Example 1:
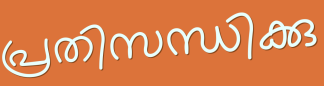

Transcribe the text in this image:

പ്രതിസന്ധിക്കു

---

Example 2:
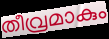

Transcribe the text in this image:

തീവ്രമാകും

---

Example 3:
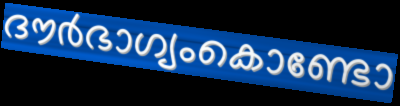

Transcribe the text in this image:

ദൗർഭാഗ്യംകൊണ്ടോ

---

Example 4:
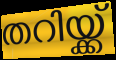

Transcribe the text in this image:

തറിയ്ക്ക്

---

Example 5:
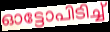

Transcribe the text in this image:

ഓട്ടോപിടിച്ച്